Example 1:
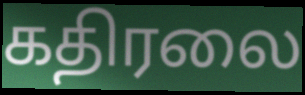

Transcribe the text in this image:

கதிரலை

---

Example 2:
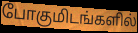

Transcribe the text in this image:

போகுமிடங்களில்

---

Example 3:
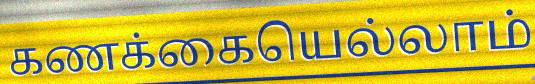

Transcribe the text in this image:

கணக்கையெல்லாம்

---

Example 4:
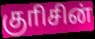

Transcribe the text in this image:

குரிசின்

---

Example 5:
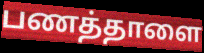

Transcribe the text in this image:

பணத்தாளை